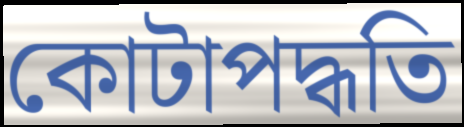
কোটাপদ্ধতি